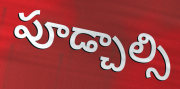
పూడ్చాల్సి